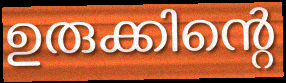
ഉരുക്കിന്റെ